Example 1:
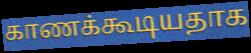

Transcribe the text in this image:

காணக்கூடியதாக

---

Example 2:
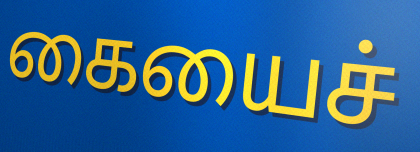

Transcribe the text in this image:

கையைச்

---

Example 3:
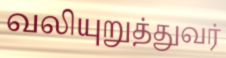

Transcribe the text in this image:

வலியுறுத்துவர்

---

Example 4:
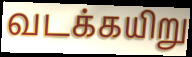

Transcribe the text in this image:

வடக்கயிறு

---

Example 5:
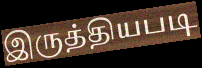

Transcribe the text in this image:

இருத்தியபடி